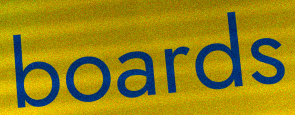
boards